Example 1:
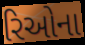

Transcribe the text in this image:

રિઓના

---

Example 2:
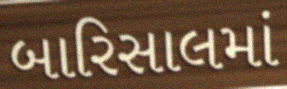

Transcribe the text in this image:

બારિસાલમાં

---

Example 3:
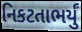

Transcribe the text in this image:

નિકટતાભર્યું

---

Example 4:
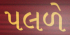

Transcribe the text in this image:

પલળે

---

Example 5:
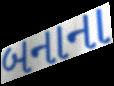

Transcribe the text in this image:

બનાના